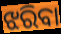
ଝରିବା